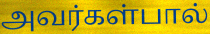
அவர்கள்பால்